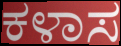
ಕಳಾಸ